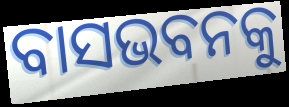
ବାସଭବନକୁ